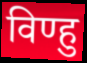
विण्हु